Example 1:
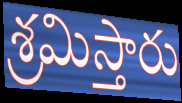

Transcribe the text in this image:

శ్రమిస్తారు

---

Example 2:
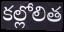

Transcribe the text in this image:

కల్లోలిత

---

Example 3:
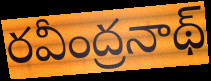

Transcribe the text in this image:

రవీంద్రనాథ్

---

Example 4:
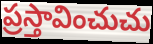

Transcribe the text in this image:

ప్రస్తావించుచు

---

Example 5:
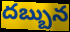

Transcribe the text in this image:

దబ్బున